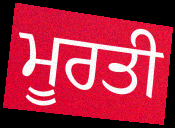
ਮੂਰਤੀ